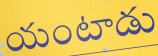
యంటాడు